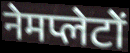
नेमप्लेटों